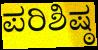
ಪರಿಶಿಷ್ಠ